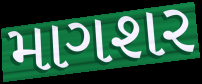
માગશર